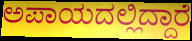
ಅಪಾಯದಲ್ಲಿದ್ದಾರೆ